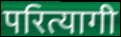
परित्यागी